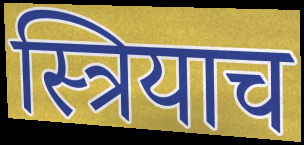
स्त्रियाच